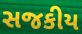
સજકીય